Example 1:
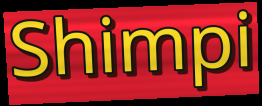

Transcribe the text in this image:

Shimpi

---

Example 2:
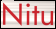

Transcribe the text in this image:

Nitu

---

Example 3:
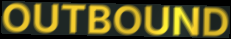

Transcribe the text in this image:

OUTBOUND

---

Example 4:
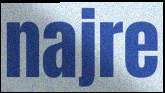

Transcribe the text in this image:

najre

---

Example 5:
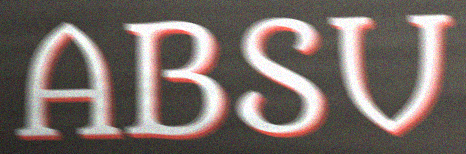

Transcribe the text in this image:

ABSU